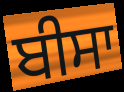
ਬੀਸਾ